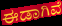
ಈಡಾಗಿವೆ